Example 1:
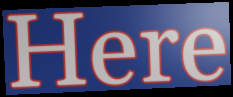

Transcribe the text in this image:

Here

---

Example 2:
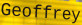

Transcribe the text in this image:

Geoffrey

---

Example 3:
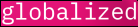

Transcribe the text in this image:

globalized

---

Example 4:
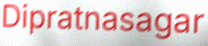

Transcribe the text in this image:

Dipratnasagar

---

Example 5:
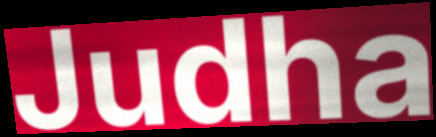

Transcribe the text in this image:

Judha